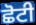
ਛੋਟੀ